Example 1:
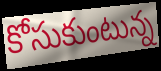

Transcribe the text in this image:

కోసుకుంటున్న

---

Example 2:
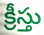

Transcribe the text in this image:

క్రీస్తు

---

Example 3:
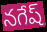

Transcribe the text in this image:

నగేష్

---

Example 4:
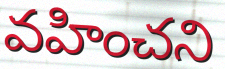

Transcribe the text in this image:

వహించని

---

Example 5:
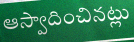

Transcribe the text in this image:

ఆస్వాదించినట్లు